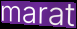
marat